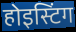
होइस्टिंग